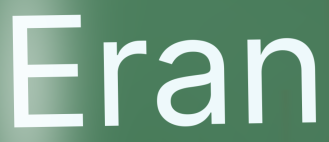
Eran